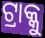
ଟ୍ରାକ୍କୁ